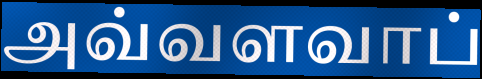
அவ்வளவாப்